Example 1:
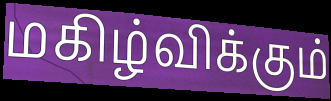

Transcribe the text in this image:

மகிழ்விக்கும்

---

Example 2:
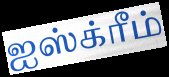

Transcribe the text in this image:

ஐஸ்க்ரீம்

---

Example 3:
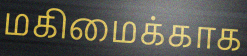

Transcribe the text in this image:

மகிமைக்காக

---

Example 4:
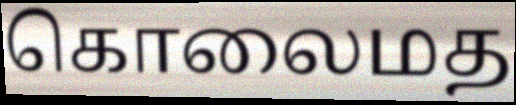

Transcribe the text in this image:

கொலைமத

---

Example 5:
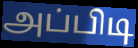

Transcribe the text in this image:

அப்பிடி